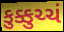
કુક્કુચ્ચં